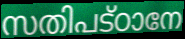
സതിപട്ഠാനേ